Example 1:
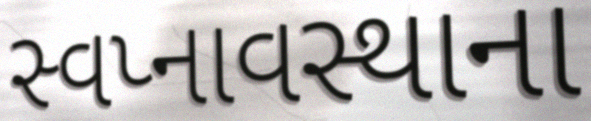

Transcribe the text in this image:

સ્વપ્નાવસ્થાના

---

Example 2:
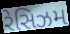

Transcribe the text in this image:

રેસિઝમ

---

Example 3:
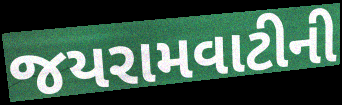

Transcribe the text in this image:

જયરામવાટીની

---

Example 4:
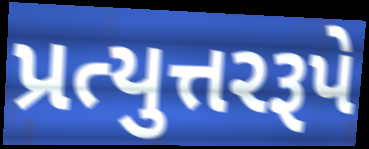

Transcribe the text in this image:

પ્રત્યુત્તરરૂપે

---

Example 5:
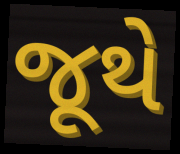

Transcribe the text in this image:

જૂથે